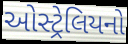
ઓસ્ટ્રેલિયનો